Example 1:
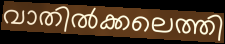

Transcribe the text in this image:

വാതിൽക്കലെത്തി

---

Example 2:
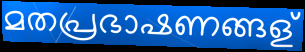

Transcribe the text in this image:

മതപ്രഭാഷണങ്ങള്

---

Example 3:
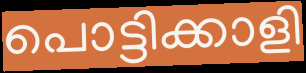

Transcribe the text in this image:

പൊട്ടിക്കാളി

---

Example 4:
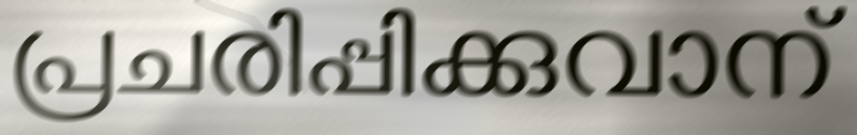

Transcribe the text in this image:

പ്രചരിപ്പിക്കുവാന്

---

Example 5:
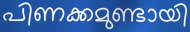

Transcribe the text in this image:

പിണക്കമുണ്ടായി